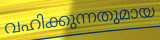
വഹിക്കുന്നതുമായ